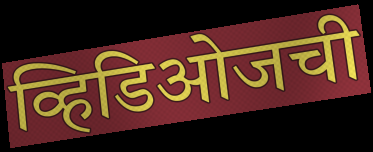
व्हिडिओजची